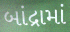
બાંદ્રામાં